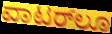
ವಾಟರ್‌ಲೂ